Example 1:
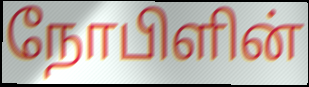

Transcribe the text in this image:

நோபிளின்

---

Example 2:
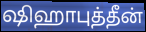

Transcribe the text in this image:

ஷிஹாபுத்தீன்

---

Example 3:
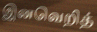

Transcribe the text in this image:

இனவெறித்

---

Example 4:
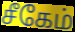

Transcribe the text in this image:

சீகேம்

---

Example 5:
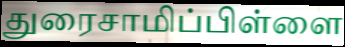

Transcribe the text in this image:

துரைசாமிப்பிள்ளை